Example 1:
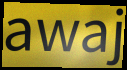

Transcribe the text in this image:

awaj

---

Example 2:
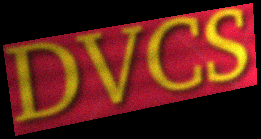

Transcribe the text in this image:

DVCS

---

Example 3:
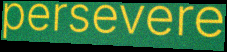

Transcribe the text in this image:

persevere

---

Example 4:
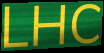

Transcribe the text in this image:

LHC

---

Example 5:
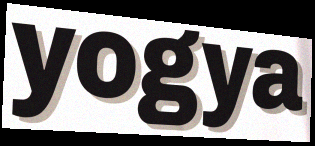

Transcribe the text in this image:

yogya